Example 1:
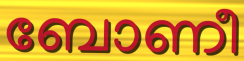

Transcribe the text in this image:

ബോണീ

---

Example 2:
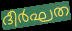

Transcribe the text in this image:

ദീർഘത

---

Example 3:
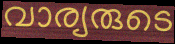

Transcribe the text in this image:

വാര്യരുടെ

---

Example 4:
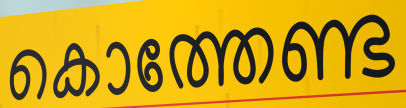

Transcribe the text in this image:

കൊത്തേണ്ട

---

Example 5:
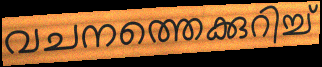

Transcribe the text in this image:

വചനത്തെക്കുറിച്ച്